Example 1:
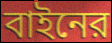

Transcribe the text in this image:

বাইনের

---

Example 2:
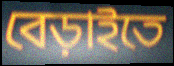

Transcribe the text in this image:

বেড়াইতে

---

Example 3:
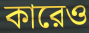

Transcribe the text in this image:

কারেও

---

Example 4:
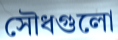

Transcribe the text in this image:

সৌধগুলো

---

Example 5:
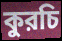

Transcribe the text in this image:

কুরচি